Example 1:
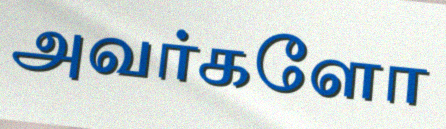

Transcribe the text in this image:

அவர்களோ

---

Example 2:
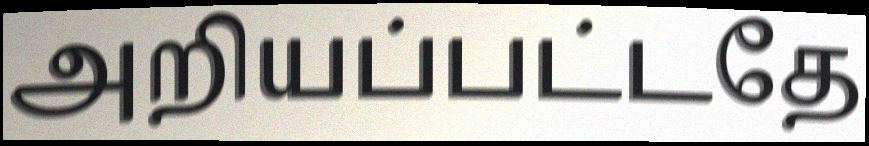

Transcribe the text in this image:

அறியப்பட்டதே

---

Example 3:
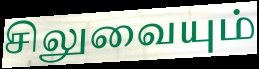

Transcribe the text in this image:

சிலுவையும்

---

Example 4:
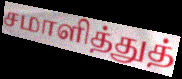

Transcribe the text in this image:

சமாளித்துத்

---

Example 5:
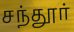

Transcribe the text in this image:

சந்தூர்